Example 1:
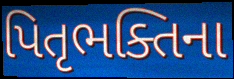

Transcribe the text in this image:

પિતૃભક્તિના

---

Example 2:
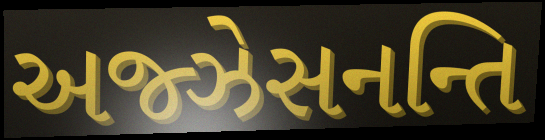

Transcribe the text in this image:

અજ્ઝેસનન્તિ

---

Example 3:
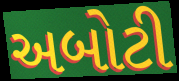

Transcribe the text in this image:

અબોટી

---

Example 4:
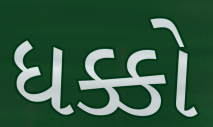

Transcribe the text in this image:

ધક્કો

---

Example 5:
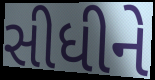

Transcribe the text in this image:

સીધીને